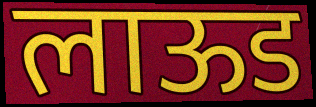
लाऊड